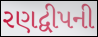
રણદ્વીપની